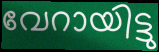
വേറായിട്ടു